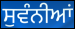
ਸੁਵੰਨੀਆਂ